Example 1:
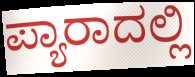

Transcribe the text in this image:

ಪ್ಯಾರಾದಲ್ಲಿ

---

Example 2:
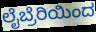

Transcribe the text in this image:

ಲೈಬ್ರೆರಿಯಿಂದ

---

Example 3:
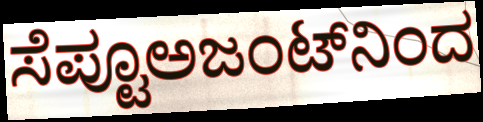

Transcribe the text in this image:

ಸೆಪ್ಟೂಅಜಂಟ್‌ನಿಂದ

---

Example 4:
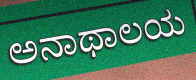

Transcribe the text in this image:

ಅನಾಥಾಲಯ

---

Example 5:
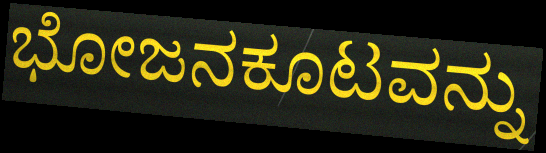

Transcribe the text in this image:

ಭೋಜನಕೂಟವನ್ನು